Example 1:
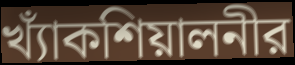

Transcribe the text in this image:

খ্যাঁকশিয়ালনীর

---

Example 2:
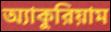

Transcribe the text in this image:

অ্যাকুরিয়াম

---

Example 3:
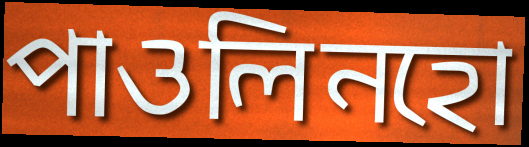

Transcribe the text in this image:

পাওলিনহো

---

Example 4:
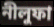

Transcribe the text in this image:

নীলুফা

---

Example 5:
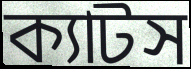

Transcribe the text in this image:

ক্যাটস